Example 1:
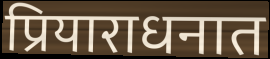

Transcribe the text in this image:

प्रियाराधनात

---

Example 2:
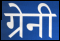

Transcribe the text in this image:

ग्रेनी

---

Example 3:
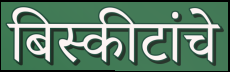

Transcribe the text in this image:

बिस्कीटांचे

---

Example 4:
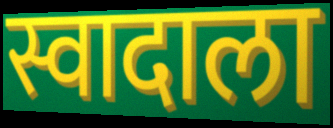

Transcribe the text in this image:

स्वादाला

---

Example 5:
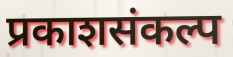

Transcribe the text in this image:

प्रकाशसंकल्प